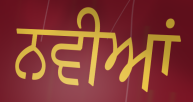
ਨਵੀਆਂ